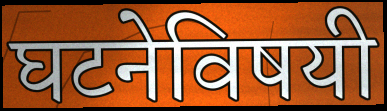
घटनेविषयी